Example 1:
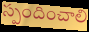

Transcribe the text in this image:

స్పందించాలి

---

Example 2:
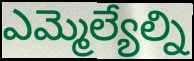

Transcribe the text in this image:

ఎమ్మెల్యేల్ని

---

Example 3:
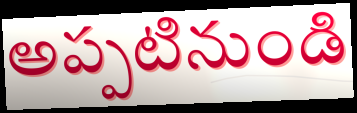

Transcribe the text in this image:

అప్పటినుండి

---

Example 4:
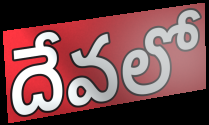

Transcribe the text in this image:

దేవలో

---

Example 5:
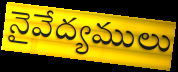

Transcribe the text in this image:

నైవేద్యములు